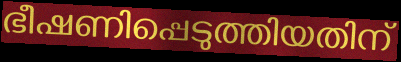
ഭീഷണിപ്പെടുത്തിയതിന്